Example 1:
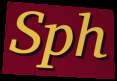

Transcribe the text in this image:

Sph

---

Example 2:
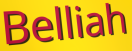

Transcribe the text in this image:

Belliah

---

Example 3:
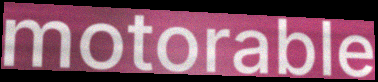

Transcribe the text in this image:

motorable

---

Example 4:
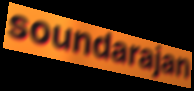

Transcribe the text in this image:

soundarajan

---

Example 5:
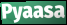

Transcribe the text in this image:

Pyaasa